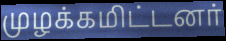
முழக்கமிட்டனர்